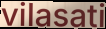
vilasati